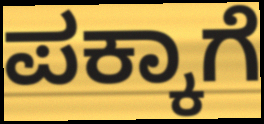
ಪಕ್ಕಾಗೆ